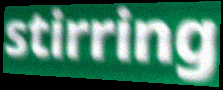
stirring